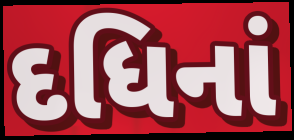
દધિનાં